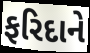
ફરિદાને